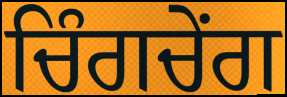
ਚਿੰਗਚੇਂਗ